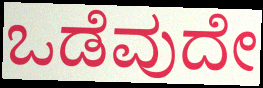
ಒಡೆವುದೇ